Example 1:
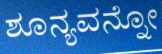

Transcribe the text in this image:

ಶೂನ್ಯವನ್ನೋ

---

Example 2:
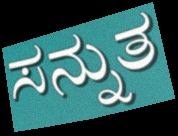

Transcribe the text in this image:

ಸನ್ನುತ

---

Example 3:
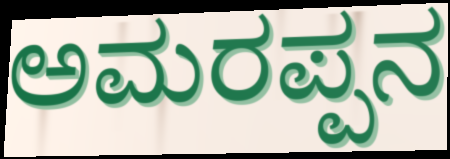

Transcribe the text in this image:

ಅಮರಪ್ಪನ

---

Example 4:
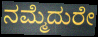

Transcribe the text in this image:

ನಮ್ಮೆದುರೇ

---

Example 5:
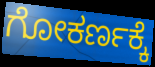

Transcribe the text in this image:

ಗೋಕರ್ಣಕ್ಕೆ